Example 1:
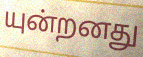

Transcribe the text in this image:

யுன்றனது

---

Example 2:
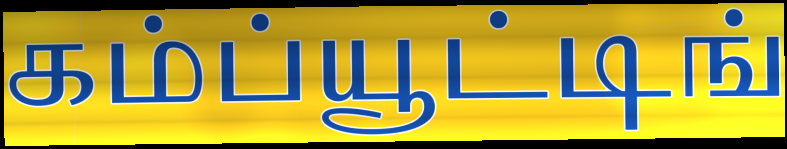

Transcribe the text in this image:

கம்ப்யூட்டிங்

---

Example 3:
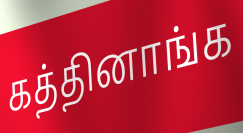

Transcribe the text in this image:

கத்தினாங்க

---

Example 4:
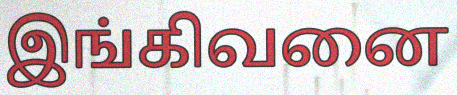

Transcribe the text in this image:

இங்கிவனை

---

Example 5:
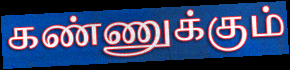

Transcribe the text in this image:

கண்ணுக்கும்